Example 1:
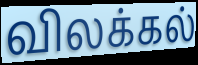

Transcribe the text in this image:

விலக்கல்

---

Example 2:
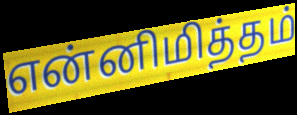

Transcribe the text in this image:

என்னிமித்தம்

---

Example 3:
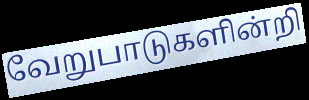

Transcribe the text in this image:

வேறுபாடுகளின்றி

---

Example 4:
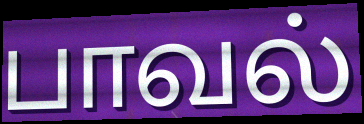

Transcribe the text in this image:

பாவல்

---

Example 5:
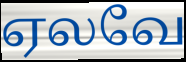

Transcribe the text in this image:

ஏலவே